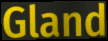
Gland